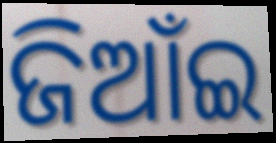
ଜିଆଁଇ